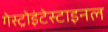
गेस्ट्रोइंटेस्टाइनल